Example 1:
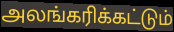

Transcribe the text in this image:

அலங்கரிக்கட்டும்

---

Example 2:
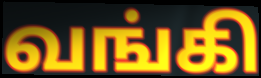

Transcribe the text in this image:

வங்கி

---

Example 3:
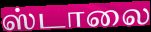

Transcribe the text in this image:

ஸ்டாலை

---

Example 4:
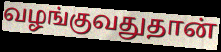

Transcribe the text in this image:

வழங்குவதுதான்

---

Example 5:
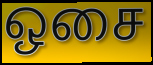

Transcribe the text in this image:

ஒசை